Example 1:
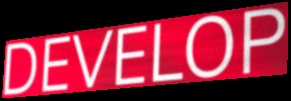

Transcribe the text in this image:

DEVELOP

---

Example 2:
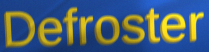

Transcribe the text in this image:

Defroster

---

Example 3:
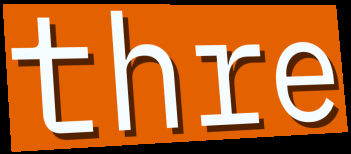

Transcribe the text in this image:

thre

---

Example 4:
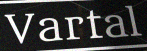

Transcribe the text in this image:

Vartal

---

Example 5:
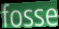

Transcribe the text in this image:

fosse